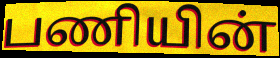
பணியின்